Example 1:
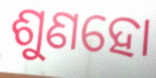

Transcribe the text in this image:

ଶୁଣହୋ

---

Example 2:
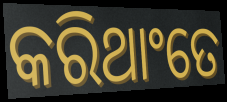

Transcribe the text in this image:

କରିଥାଂତେ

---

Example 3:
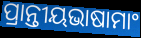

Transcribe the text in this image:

ପ୍ରାନ୍ତୀୟଭାଷାମାଂ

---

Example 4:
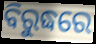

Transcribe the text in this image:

ବିରୁଦ୍ଧରେ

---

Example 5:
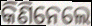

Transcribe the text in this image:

କିଣିନେଲେ